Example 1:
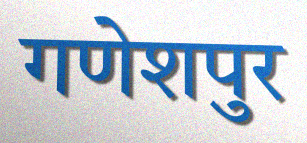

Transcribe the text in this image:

गणेशपुर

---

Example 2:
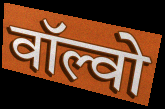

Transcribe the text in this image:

वॉल्‍वो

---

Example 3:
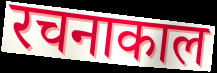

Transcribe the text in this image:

रचनाकाल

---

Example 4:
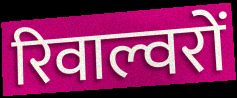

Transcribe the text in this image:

रिवाल्वरों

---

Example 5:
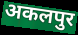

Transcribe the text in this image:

अकलपुर